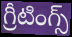
గ్రీటింగ్స్